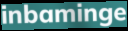
inbaminge